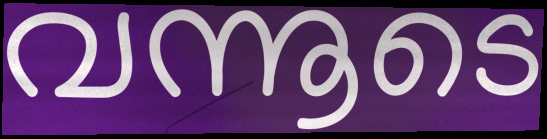
വന്നൂടെ